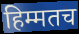
हिम्मतच